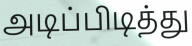
அடிப்பிடித்து